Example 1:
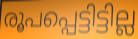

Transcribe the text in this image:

രൂപപ്പെട്ടിട്ടില്ല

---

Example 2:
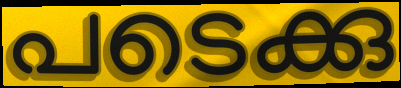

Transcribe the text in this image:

പടെക്കു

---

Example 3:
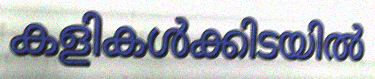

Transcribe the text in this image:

കളികൾക്കിടയിൽ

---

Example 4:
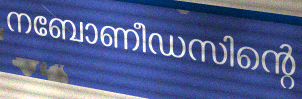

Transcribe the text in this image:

നബോണീഡസിന്റെ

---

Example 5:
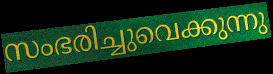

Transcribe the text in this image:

സംഭരിച്ചുവെക്കുന്നു